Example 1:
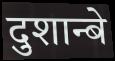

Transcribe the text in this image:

दुशान्बे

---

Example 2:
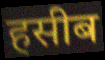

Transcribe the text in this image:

हसीब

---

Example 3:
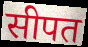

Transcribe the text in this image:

सीपत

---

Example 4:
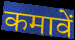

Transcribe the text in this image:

कमावें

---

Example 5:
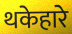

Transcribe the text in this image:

थकेहारे